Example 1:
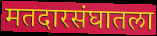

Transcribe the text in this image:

मतदारसंघातला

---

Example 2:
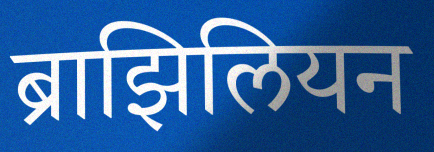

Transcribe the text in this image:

ब्राझिलियन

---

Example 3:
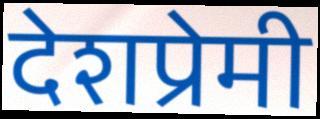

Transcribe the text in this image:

देशप्रेमी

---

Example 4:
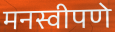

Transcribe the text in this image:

मनस्वीपणे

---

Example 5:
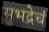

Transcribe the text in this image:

सुभद्रेचं